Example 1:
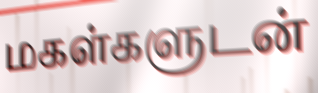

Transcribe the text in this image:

மகள்களுடன்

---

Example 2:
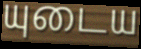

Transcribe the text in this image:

யுடைய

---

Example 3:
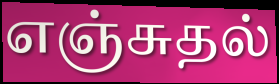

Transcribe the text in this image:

எஞ்சுதல்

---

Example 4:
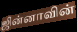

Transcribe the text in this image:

ஜின்னாவின்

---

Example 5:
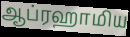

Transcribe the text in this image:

ஆப்ரஹாமிய